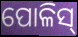
ପୋଳିସ୍